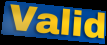
Valid